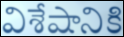
విశేషానికి